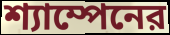
শ্যাম্পেনের